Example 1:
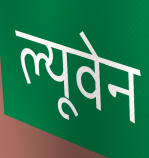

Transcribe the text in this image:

ल्यूवेन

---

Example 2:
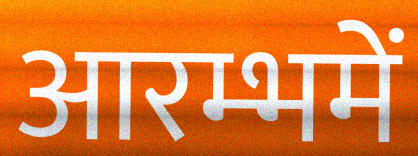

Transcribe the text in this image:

आरम्भमें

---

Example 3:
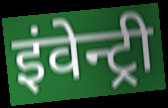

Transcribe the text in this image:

इंवेन्ट्री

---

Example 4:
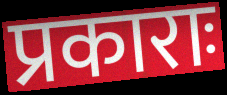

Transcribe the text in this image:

प्रकाराः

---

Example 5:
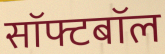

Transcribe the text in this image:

सॉफ्टबॉल